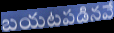
బయటపడినవే